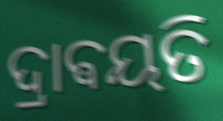
ଦ୍ରାଵୟତି